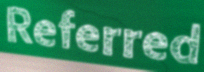
Referred